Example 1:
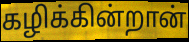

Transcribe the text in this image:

கழிக்கின்றான்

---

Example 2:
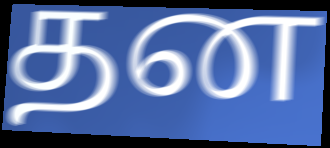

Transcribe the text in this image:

தன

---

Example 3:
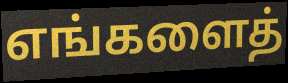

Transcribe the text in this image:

எங்களைத்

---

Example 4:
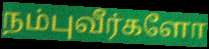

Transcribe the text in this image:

நம்புவீர்களோ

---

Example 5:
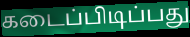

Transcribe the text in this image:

கடைப்பிடிப்பது